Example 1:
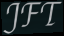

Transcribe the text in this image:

JFT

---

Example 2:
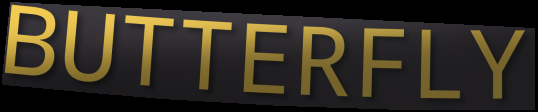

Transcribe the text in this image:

BUTTERFLY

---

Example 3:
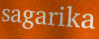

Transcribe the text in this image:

sagarika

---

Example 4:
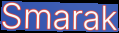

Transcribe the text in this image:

Smarak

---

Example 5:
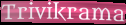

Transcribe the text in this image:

Trivikrama